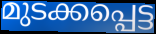
മുടക്കപ്പെട്ട